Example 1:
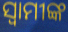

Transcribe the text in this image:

ସ୍ବାମୀଙ୍କ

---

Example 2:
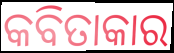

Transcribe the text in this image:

କବିତାକାର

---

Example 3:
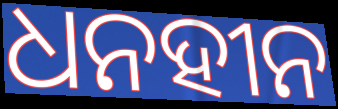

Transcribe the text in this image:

ଧନହୀନ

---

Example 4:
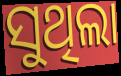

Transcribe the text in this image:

ସୁଥିଲା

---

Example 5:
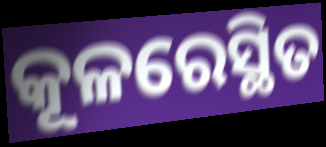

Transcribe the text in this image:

କୂଳରେସ୍ଥିତ